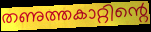
തണുത്തകാറ്റിന്റെ